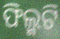
ଫିଲ୍ମଟି